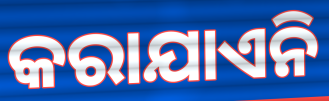
କରାଯାଏନି